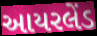
આયરલેંડ